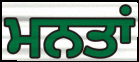
ਮਨਤਾਂ